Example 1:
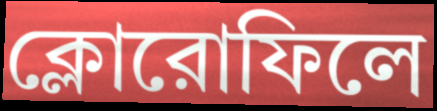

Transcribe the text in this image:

ক্লোরোফিলে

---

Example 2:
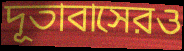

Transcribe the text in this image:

দূতাবাসেরও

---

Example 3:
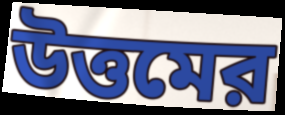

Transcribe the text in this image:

উত্তমের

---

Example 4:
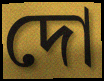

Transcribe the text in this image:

দো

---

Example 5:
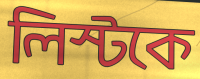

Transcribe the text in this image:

লিস্টকে